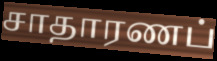
சாதாரணப்